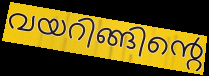
വയറിങ്ങിന്റെ